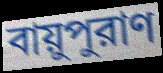
বায়ুপুরাণ